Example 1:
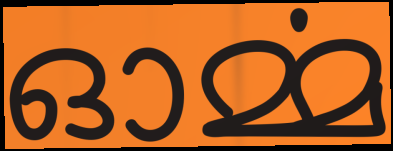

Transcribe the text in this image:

ഓൎമ്മ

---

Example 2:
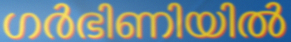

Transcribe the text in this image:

ഗർഭിണിയിൽ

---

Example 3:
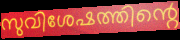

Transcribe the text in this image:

സുവിശേഷത്തിന്റെ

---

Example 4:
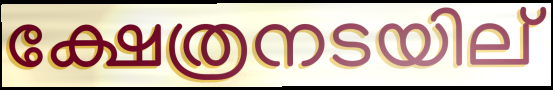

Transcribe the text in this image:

ക്ഷേത്രനടയില്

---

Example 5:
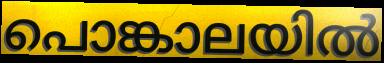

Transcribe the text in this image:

പൊങ്കാലയിൽ